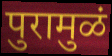
पुरामुळं